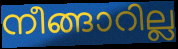
നീങ്ങാറില്ല